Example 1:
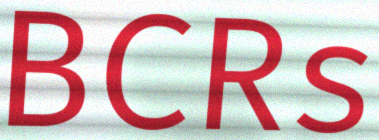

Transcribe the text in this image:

BCRs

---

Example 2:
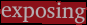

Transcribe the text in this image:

exposing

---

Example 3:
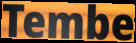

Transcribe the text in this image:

Tembe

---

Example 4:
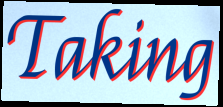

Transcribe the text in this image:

Taking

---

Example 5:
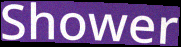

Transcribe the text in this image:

Shower